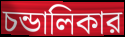
চন্ডালিকার